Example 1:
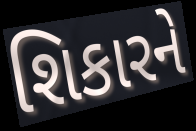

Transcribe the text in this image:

શિકારને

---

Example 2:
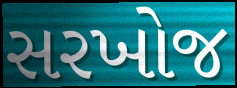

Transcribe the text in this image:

સરખોજ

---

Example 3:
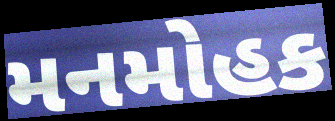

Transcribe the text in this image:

મનમોહક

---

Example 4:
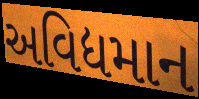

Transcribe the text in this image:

અવિદ્યમાન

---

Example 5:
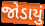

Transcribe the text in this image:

જોડાયું